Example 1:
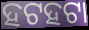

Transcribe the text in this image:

ହଟହଟା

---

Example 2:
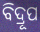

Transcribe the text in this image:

ବିଦ୍ରୂପ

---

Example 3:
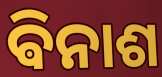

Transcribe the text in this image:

ଵିନାଶ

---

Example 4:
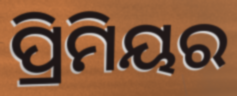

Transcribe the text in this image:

ପ୍ରିମିୟର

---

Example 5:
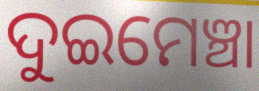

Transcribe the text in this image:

ଦୁଇମେଞ୍ଚା